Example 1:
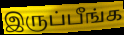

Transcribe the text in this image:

இருப்பீங்க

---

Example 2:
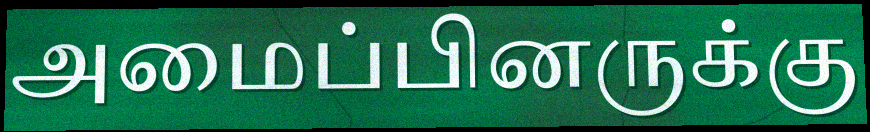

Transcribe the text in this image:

அமைப்பினருக்கு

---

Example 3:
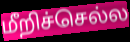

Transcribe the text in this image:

மீறிச்செல்ல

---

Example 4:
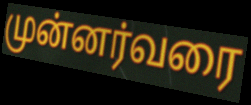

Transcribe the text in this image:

முன்னர்வரை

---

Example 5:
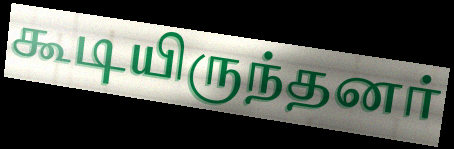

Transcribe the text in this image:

கூடியிருந்தனர்